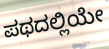
ಪಥದಲ್ಲಿಯೇ